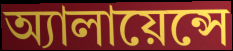
অ্যালায়েন্সে